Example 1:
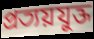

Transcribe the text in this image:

প্রত্যয়যুক্ত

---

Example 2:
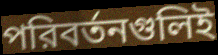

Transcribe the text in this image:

পরিবর্তনগুলিই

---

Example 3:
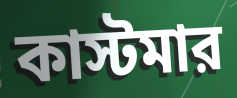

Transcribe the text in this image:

কাস্টমার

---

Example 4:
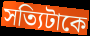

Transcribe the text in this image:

সত্যিটাকে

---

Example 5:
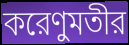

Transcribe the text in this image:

করেণুমতীর